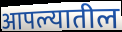
आपल्यातील